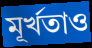
মূর্খতাও